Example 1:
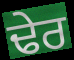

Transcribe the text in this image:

ਢੇਰ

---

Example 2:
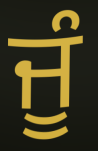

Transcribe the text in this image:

ਜੂੰ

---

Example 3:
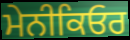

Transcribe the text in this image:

ਮੇਨੀਕਿਓਰ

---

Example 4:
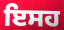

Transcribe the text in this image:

ਇਸਹ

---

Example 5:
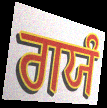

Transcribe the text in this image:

ਗਯੰ